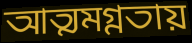
আত্মমগ্নতায়